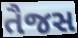
તૈજસ